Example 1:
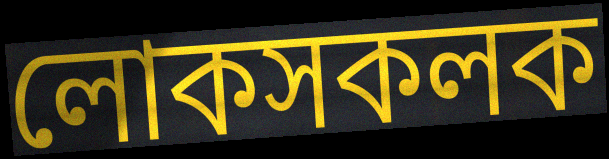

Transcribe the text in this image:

লোকসকলক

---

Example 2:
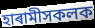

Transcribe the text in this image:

হাৰামীসকলক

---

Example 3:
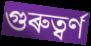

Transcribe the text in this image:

গুৰুত্ৱৰ্ণ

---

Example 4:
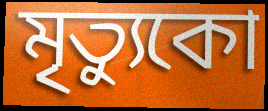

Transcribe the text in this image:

মৃত্যুকো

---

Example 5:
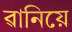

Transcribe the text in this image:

ৱানিয়ে